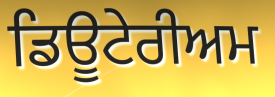
ਡਿਊਟੇਰੀਅਮ